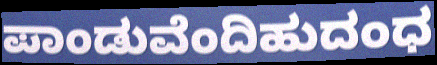
ಪಾಂಡುವೆಂದಿಹುದಂಧ